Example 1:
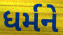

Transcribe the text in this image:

ધર્મને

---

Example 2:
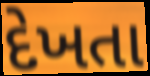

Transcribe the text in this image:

દેખતા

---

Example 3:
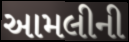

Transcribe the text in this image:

આમલીની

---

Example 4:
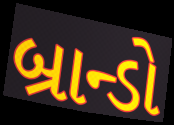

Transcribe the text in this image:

બ્રાન્ડો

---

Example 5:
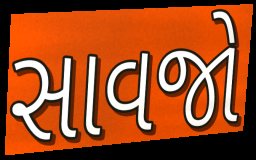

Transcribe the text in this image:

સાવજો